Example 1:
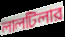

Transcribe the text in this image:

লালটিলার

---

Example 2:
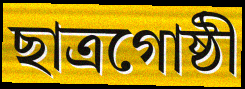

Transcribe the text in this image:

ছাত্রগোষ্ঠী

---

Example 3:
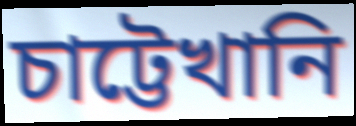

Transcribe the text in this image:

চাট্টেখানি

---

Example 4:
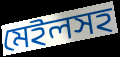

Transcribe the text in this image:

মেইলসহ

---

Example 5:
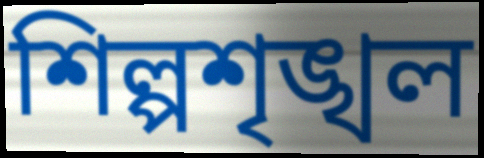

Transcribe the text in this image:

শিল্পশৃঙ্খল